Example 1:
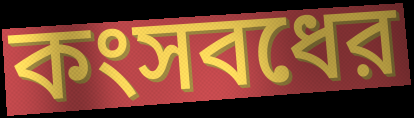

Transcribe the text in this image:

কংসবধের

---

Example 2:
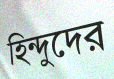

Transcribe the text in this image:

হিন্দুদের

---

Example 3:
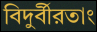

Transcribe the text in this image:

বিদুর্বীরতাং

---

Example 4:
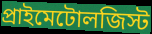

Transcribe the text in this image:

প্রাইমেটোলজিস্ট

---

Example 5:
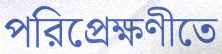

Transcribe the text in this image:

পরিপ্রেক্ষণীতে